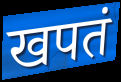
खपतं